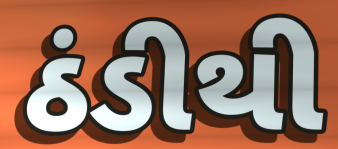
ઠંડીથી